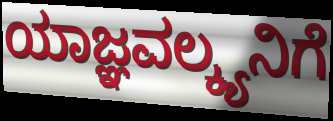
ಯಾಜ್ಞವಲ್ಕ್ಯನಿಗೆ